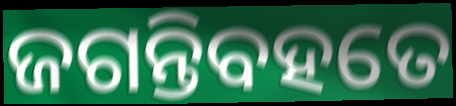
ଜଗନ୍ତିବହତେ